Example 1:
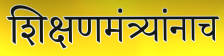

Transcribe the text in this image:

शिक्षणमंत्र्यांनाच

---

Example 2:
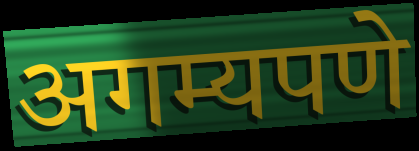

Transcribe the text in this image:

अगम्यपणे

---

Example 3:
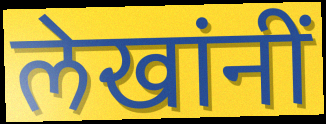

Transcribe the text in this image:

लेखांनीं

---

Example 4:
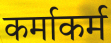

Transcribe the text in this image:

कर्माकर्म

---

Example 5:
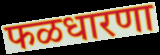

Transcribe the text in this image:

फळधारणा